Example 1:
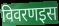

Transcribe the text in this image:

विवरणइस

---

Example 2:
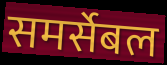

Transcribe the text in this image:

समर्सेबल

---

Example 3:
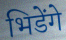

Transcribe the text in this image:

भिडेंगे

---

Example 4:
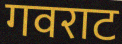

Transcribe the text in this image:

गवराट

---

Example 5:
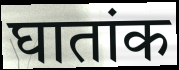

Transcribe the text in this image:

घातांक